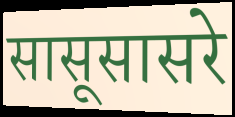
सासूसासरे